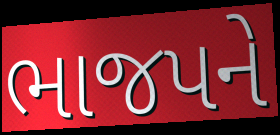
ભાજપને